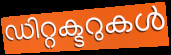
ഡിറ്റക്ടറുകൾ